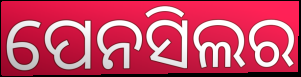
ପେନସିଲର